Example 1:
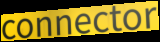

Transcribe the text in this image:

connector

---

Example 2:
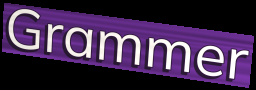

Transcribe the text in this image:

Grammer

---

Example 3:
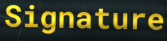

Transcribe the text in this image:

Signature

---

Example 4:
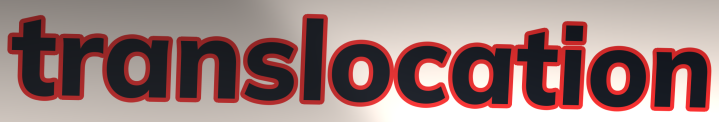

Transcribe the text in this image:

translocation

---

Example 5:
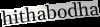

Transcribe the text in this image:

hithabodha